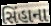
સિંહાના